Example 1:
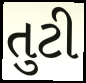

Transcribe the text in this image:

તુટી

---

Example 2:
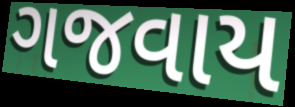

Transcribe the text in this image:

ગજવાય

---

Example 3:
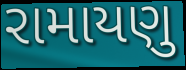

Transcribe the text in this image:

રામાયણુ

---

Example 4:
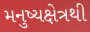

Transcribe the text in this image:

મનુષ્યક્ષેત્રથી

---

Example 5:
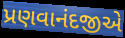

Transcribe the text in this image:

પ્રણવાનંદજીએ